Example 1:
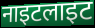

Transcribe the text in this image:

नाइटलाइट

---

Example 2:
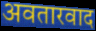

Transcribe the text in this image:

अवतारवाद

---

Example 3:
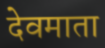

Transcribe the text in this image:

देवमाता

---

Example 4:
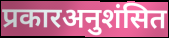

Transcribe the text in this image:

प्रकारअनुशंसित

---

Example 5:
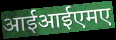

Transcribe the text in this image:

आईआईएमए